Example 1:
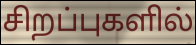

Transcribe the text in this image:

சிறப்புகளில்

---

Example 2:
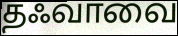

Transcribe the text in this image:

தஃவாவை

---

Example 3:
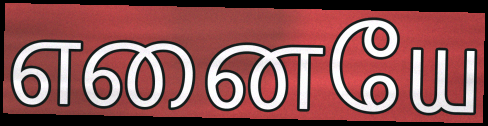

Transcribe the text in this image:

எனையே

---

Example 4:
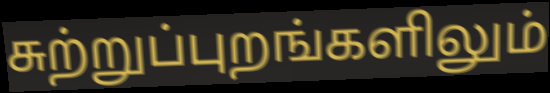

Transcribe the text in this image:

சுற்றுப்புறங்களிலும்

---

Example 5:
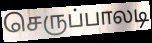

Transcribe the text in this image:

செருப்பாலடி